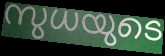
സുധയുടെ